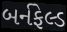
બર્નફેલ્ડ